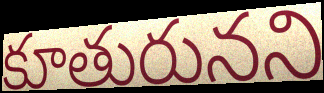
కూతురునని